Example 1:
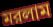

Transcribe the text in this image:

মরলাম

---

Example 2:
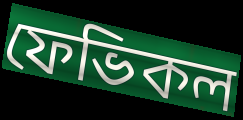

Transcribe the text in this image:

ফেভিকল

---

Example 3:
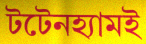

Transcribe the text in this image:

টটেনহ্যামই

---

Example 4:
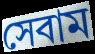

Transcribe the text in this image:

সেবাম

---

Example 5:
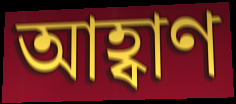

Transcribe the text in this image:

আহ্বাণ